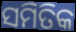
ସମିତିକ